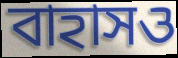
বাহাসও